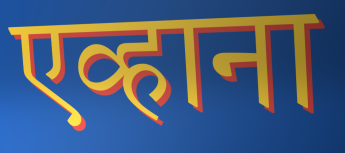
एव्हाना